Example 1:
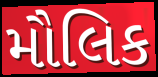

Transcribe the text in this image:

મૌલિક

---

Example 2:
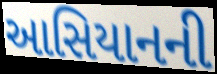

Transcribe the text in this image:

આસિયાનની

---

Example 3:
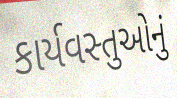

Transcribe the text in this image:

કાર્યવસ્તુઓનું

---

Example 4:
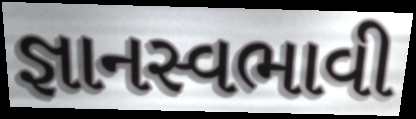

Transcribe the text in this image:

જ્ઞાનસ્વભાવી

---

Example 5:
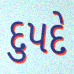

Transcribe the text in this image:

દુપદે